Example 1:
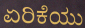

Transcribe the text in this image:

ಏರಿಕೆಯು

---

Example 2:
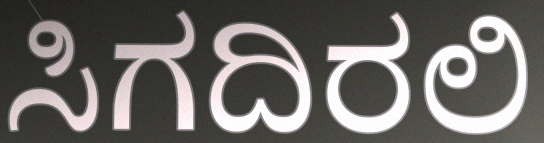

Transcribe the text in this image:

ಸಿಗದಿರಲಿ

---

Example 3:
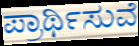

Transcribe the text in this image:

ಪ್ರಾರ್ಥಿಸುವೆ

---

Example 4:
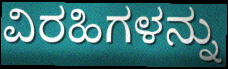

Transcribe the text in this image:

ವಿರಹಿಗಳನ್ನು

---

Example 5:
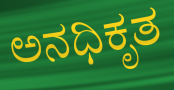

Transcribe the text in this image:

ಅನಧಿಕೃತ